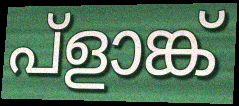
പ്ളാങ്ക്